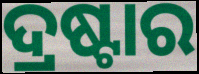
ଦ୍ରଷ୍ଟାର